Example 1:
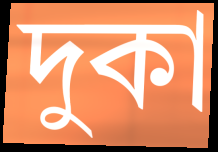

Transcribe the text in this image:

দুকা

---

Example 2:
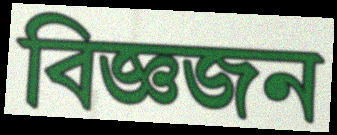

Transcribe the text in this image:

বিজ্ঞজন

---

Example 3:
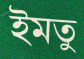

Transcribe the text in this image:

ইমতু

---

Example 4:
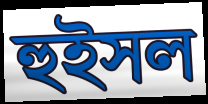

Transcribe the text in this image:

হুইসল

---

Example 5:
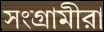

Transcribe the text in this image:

সংগ্রামীরা